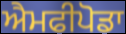
ਐਮਫੀਪੋਡਾ